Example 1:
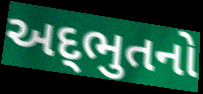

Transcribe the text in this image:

અદ્‌ભુતનો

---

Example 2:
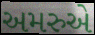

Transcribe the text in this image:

અમરુએ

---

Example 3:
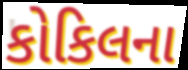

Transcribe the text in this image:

કોકિલના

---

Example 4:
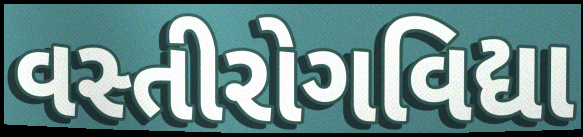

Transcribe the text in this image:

વસ્તીરોગવિદ્યા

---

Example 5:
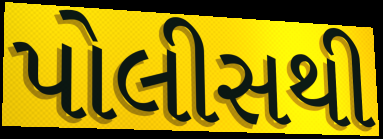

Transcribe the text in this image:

પોલીસથી